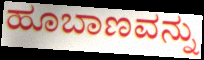
ಹೂಬಾಣವನ್ನು